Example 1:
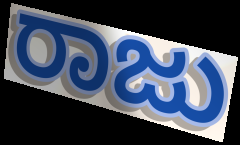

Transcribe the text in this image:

ರಾಜು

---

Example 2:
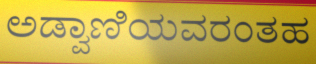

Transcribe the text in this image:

ಅಡ್ವಾಣಿಯವರಂತಹ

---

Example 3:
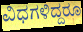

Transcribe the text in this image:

ವಿಧಗಳಿದ್ದರೂ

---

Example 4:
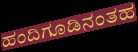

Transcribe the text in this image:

ಹಂದಿಗೂಡಿನಂತಹ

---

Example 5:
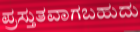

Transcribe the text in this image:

ಪ್ರಸ್ತುತವಾಗಬಹುದು